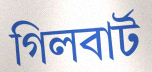
গিলবাৰ্ট